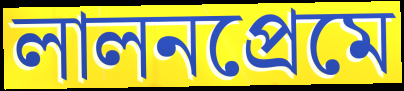
লালনপ্রেমে